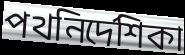
পথনির্দেশিকা